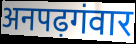
अनपढ़गंवार